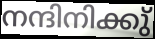
നന്ദിനിക്കു്